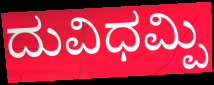
ದುವಿಧಮ್ಪಿ